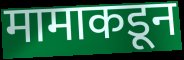
मामाकडून